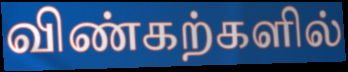
விண்கற்களில்